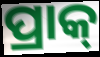
ପ୍ରାକ୍